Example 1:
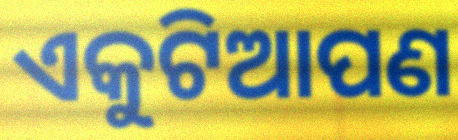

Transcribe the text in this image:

ଏକୁଟିଆପଣ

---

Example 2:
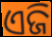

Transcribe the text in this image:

ଏଜି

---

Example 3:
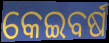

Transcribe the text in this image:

କେଇବର୍ଷ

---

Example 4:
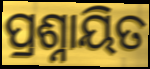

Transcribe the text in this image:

ପ୍ରଶ୍ନାୟିତ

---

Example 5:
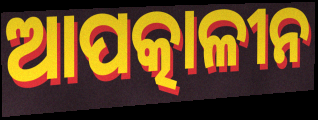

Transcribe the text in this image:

ଆପତ୍କାଳୀନ